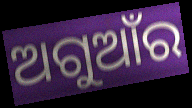
ଅଗୁଆଁର